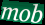
mob